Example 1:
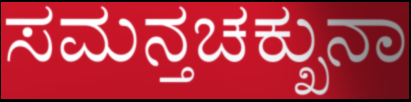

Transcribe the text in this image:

ಸಮನ್ತಚಕ್ಖುನಾ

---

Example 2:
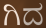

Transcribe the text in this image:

ಗಿದ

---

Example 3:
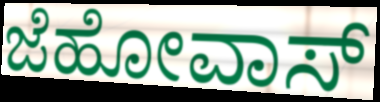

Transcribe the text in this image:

ಜೆಹೋವಾಸ್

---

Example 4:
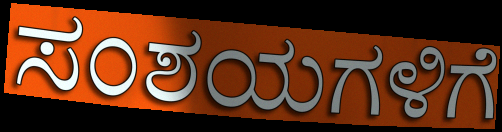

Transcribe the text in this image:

ಸಂಶಯಗಳಿಗೆ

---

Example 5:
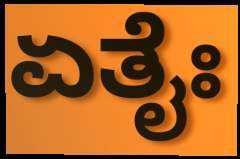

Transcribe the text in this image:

ಏತೈಃ